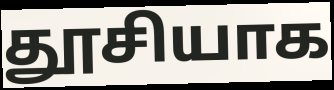
தூசியாக